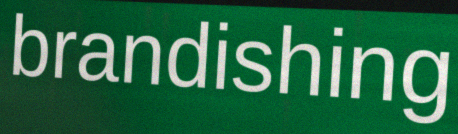
brandishing